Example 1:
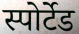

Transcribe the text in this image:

स्पोर्टेड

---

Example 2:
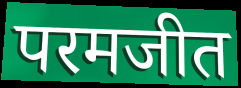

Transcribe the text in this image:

परमजीत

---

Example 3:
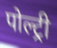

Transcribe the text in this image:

पोल्ट्री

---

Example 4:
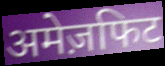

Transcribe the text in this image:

अमेज़फिट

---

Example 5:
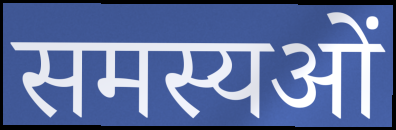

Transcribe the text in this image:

समस्यओं